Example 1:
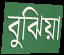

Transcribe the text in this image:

বুঝিয়া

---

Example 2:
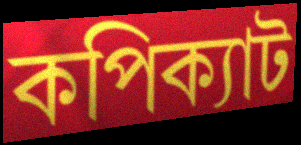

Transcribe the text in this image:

কপিক্যাট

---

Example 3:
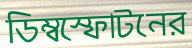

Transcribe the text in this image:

ডিম্বস্ফোটনের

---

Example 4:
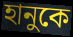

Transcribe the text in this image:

হানুকে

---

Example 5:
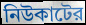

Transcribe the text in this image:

নিউকাটের